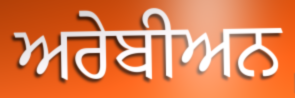
ਅਰੇਬੀਅਨ